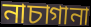
নাচাগানা